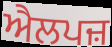
ਐਲਪਜ਼